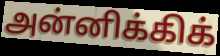
அன்னிக்கிக்